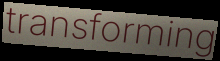
transforming